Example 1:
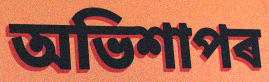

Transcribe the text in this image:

অভিশাপৰ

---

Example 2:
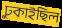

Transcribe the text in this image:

ঢুকাইছিল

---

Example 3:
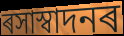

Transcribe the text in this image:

ৰসাস্বাদনৰ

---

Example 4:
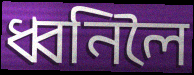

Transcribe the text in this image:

ধ্বনিলৈ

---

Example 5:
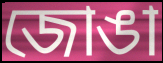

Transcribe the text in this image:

জোঙা